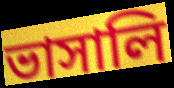
ভাসালি